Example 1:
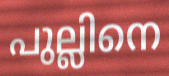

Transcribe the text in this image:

പുല്ലിനെ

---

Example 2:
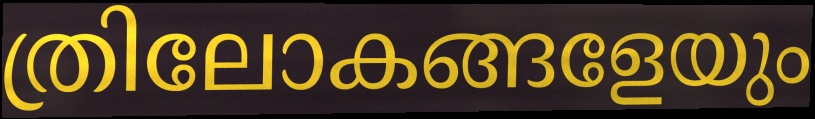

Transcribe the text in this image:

ത്രിലോകങ്ങളേയും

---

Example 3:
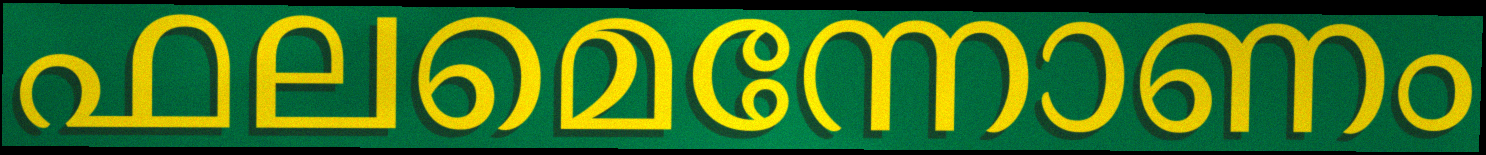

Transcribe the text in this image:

ഫലമെന്നോണം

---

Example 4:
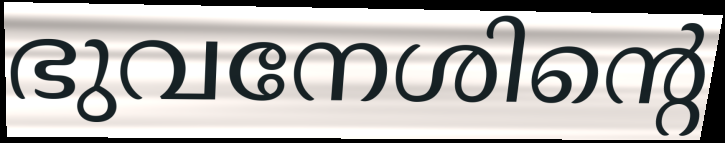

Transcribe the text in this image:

ഭുവനേശിന്റെ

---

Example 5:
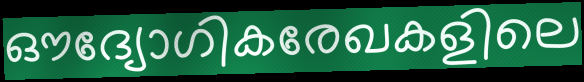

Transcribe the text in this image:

ഔദ്യോഗികരേഖകളിലെ